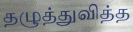
தழுத்துவித்த